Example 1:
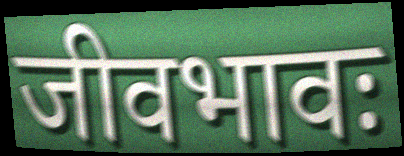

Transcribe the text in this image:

जीवभावः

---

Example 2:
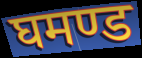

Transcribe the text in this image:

घमण्ड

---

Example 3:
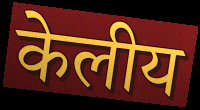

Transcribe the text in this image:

केलीय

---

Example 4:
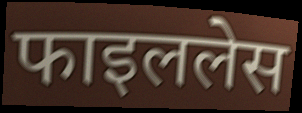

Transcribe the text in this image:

फाइललेस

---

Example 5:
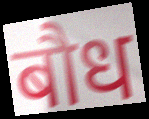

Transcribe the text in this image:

बौध